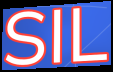
SIL